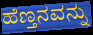
ಹೆಣ್ತನವನ್ನು